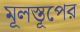
মূলস্তূপের